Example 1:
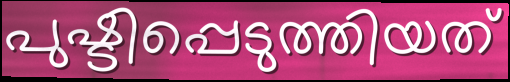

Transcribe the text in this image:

പുഷ്ടിപ്പെടുത്തിയത്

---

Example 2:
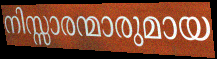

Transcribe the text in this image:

നിസ്സാരന്മാരുമായ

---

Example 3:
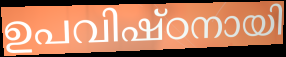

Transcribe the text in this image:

ഉപവിഷ്ഠനായി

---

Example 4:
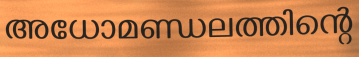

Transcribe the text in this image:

അധോമണ്ഡലത്തിന്റെ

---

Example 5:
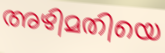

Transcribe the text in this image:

അഴിമതിയെ